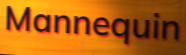
Mannequin